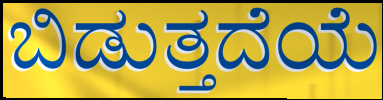
ಬಿಡುತ್ತದೆಯೆ